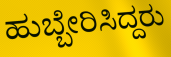
ಹುಬ್ಬೇರಿಸಿದ್ದರು